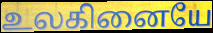
உலகினையே